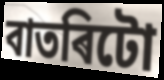
বাতৰিটো